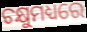
ଚକ୍ଷୁମଧ୍ଯରେ